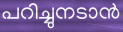
പറിച്ചുനടാൻ